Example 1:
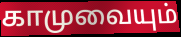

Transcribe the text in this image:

காமுவையும்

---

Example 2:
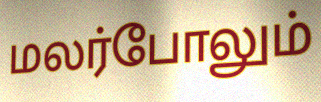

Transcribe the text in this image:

மலர்போலும்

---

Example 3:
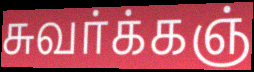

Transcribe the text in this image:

சுவர்க்கஞ்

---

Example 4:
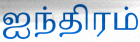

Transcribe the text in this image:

ஐந்திரம்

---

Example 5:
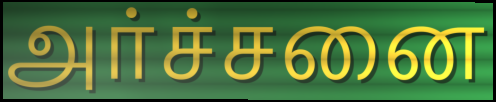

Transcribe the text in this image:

அர்ச்சனை